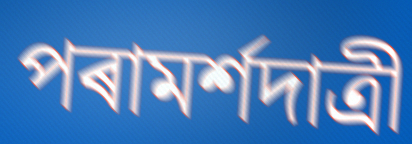
পৰামৰ্শদাত্ৰী